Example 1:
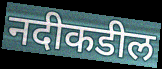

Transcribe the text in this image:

नदीकडील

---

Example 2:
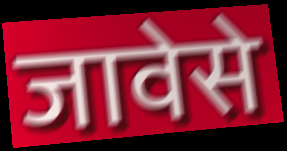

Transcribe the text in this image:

जावेसे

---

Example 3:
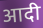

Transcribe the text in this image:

आदी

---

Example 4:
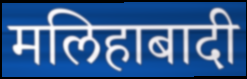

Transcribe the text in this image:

मलिहाबादी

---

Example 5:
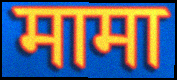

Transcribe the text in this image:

मामा